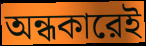
অন্ধকারেই